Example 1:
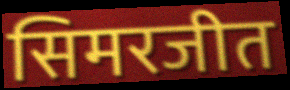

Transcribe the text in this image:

सिमरजीत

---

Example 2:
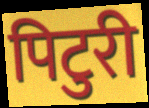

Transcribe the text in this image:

पिटुरी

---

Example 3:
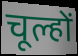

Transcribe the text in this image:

चूल्हों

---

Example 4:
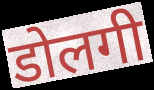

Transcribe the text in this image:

डोलगी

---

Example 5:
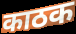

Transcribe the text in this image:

काठक